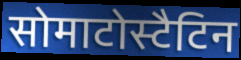
सोमाटोस्टैटिन